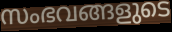
സംഭവങ്ങളുടെ